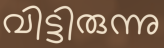
വിട്ടിരുന്നു